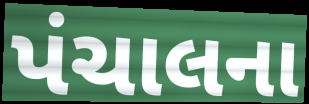
પંચાલના